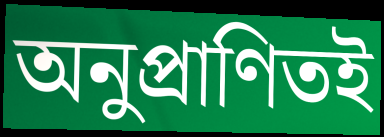
অনুপ্রাণিতই